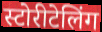
स्टोरीटेलिंग